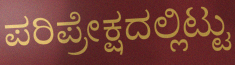
ಪರಿಪ್ರೇಕ್ಷದಲ್ಲಿಟ್ಟು